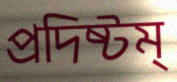
প্রদিষ্টম্